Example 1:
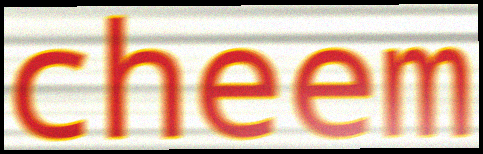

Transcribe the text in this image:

cheem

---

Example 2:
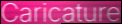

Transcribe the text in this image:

Caricature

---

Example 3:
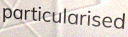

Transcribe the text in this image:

particularised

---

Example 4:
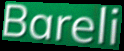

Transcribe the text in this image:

Bareli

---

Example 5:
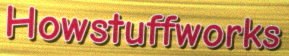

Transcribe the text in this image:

Howstuffworks